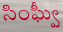
సింఘ్వీ